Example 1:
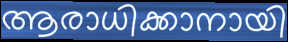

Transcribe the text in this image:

ആരാധിക്കാനായി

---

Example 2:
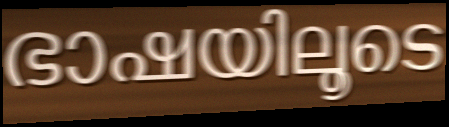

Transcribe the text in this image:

ഭാഷയിലൂടെ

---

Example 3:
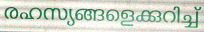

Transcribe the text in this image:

രഹസ്യങ്ങളെക്കുറിച്ച്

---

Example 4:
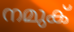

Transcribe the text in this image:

നമുക്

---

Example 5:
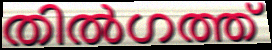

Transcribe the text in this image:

തിൽഗത്ത്